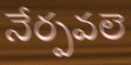
నేర్పవలె